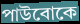
পাউবোকে